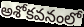
అశోకవనంలో